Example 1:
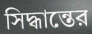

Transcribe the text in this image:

সিদ্ধান্তের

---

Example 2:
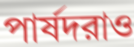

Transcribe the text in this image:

পার্ষদরাও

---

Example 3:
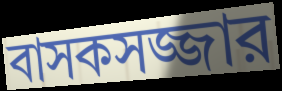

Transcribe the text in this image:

বাসকসজ্জার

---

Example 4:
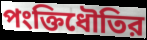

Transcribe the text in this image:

পংক্তিধৌতির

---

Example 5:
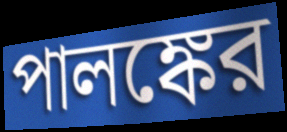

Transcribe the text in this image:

পালঙ্কের